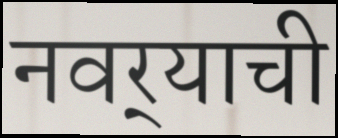
नवर्याची